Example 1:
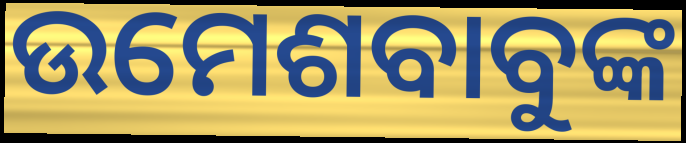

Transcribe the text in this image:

ଉମେଶବାବୁଙ୍କ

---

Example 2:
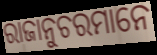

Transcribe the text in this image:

ରାଜାନୁଚରମାନେ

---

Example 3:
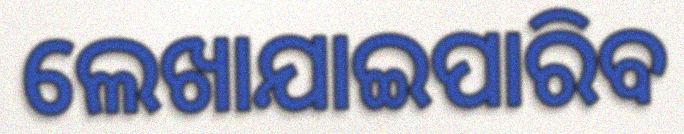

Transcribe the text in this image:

ଲେଖାଯାଇପାରିବ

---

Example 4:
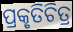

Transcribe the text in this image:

ପ୍ରକୃତିଚିତ୍ର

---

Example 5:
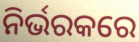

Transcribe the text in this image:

ନିର୍ଭରକରେ